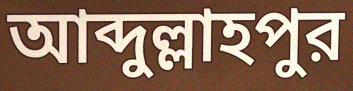
আব্দুল্লাহপুর